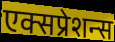
एक्सप्रेशन्स